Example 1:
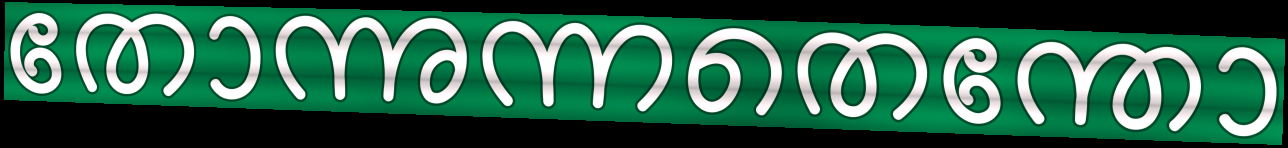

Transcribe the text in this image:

തോന്നുന്നതെന്തോ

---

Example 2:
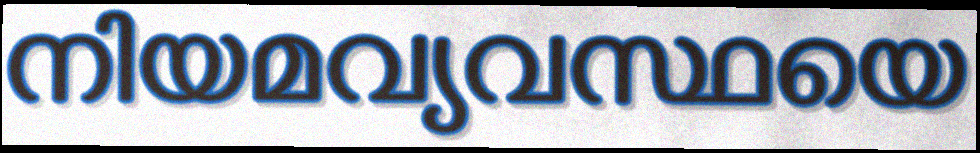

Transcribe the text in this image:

നിയമവ്യവസ്ഥയെ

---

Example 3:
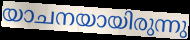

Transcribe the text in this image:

യാചനയായിരുന്നു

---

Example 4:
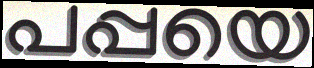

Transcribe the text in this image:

പപ്പയെ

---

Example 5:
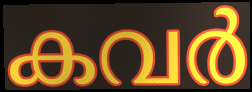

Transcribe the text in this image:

കവർ